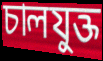
চালযুক্ত